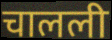
चालली